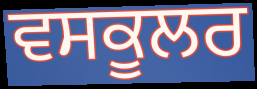
ਵਸਕੂਲਰ